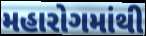
મહારોગમાંથી